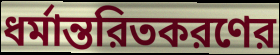
ধর্মান্তরিতকরণের